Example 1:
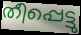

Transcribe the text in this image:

തീപ്പെട്ടു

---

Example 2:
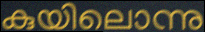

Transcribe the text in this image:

കുയിലൊന്നു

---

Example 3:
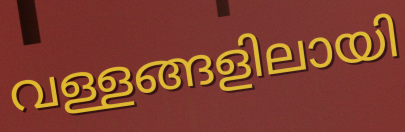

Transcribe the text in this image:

വള്ളങ്ങളിലായി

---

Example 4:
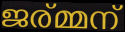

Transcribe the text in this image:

ജര്മ്മന്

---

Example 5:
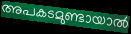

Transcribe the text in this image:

അപകടമുണ്ടായാൽ